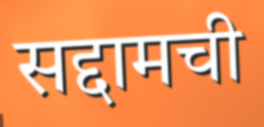
सद्दामची